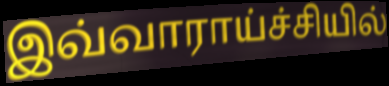
இவ்வாராய்ச்சியில்